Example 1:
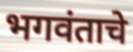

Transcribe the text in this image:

भगवंताचे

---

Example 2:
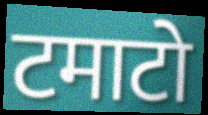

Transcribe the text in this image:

टमाटो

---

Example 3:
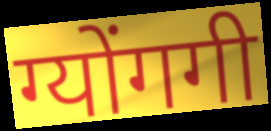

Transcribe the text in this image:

ग्योंगगी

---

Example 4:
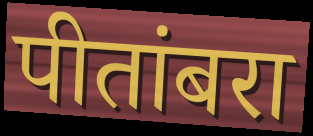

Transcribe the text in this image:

पीतांबरा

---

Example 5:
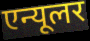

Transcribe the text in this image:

एन्यूलर